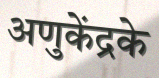
अणुकेंद्रके